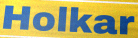
Holkar